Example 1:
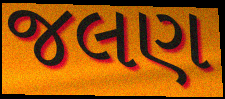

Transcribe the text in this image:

જલણ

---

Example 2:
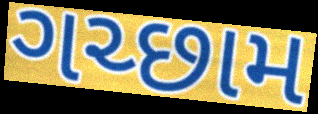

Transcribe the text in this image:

ગચ્છામ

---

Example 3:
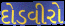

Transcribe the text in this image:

દોડવીરો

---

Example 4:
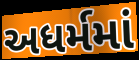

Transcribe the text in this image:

અધર્મમાં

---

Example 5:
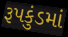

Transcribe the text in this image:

રૂપકુંડમાં